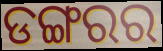
ଡଙ୍ଗରର